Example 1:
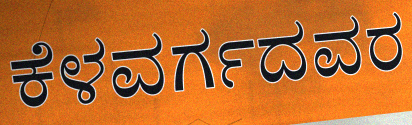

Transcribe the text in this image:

ಕೆಳವರ್ಗದವರ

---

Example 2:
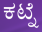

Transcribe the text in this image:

ಕಟ್ನೆ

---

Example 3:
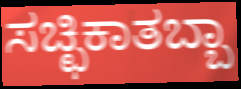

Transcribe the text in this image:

ಸಚ್ಛಿಕಾತಬ್ಬಾ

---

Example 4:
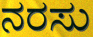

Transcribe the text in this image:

ನರಸು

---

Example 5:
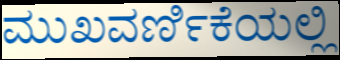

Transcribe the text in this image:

ಮುಖವರ್ಣಿಕೆಯಲ್ಲಿ